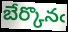
బేర్కొనఁ